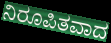
ನಿರೂಪಿತವಾದ